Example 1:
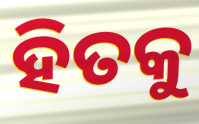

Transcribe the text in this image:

ହିତକୁ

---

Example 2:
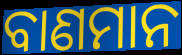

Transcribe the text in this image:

ବାଣମାନ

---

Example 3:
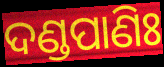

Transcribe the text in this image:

ଦଣ୍ଡପାଣିଃ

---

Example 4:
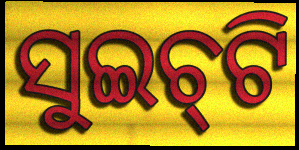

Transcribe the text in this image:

ସୁଇଚ୍‌ଟି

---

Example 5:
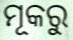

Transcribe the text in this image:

ମୂକରୁ